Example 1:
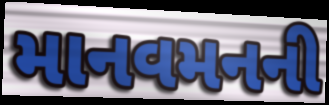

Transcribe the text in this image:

માનવમનની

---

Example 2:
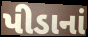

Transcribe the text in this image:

પીડાનાં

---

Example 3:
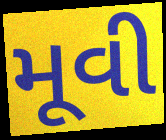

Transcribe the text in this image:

મૂવી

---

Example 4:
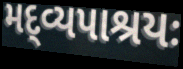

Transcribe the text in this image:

મદ્વ્યપાશ્રયઃ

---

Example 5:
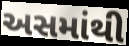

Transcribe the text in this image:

અસમાંથી